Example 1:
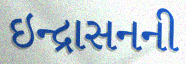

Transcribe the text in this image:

ઇન્દ્રાસનની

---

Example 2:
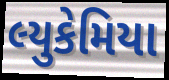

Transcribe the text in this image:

લ્યુકેમિયા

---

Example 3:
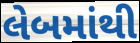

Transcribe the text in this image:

લેબમાંથી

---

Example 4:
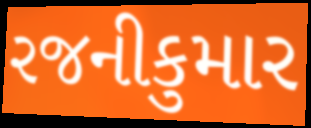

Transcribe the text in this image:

રજનીકુમાર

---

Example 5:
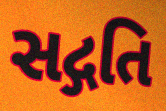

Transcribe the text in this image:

સદ્ગતિ